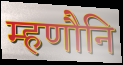
म्हणौनि